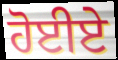
ਹੋਈਏ